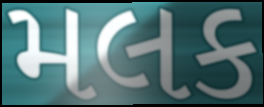
મલક